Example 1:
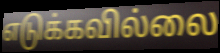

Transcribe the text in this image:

எடுக்கவில்லை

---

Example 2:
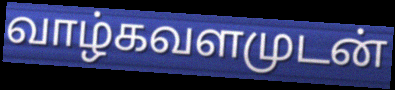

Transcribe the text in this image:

வாழ்கவளமுடன்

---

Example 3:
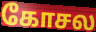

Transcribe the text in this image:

கோசல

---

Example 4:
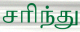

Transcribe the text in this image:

சரிந்து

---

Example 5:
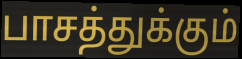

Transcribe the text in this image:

பாசத்துக்கும்